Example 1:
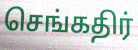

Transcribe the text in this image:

செங்கதிர்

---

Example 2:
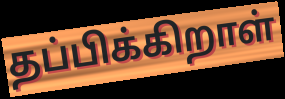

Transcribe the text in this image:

தப்பிக்கிறாள்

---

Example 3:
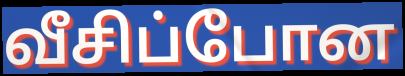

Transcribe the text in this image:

வீசிப்போன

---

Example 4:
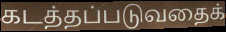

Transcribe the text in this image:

கடத்தப்படுவதைக்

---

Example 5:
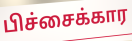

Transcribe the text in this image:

பிச்சைக்கார